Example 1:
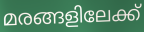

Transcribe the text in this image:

മരങ്ങളിലേക്ക്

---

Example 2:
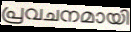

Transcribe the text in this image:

പ്രവചനമായി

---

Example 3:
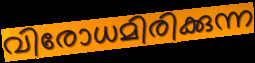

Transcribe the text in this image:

വിരോധമിരിക്കുന്ന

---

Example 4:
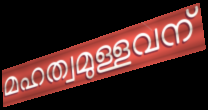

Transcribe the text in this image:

മഹത്വമുള്ളവന്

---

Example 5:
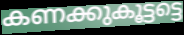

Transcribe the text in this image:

കണക്കുകൂട്ടട്ടെ